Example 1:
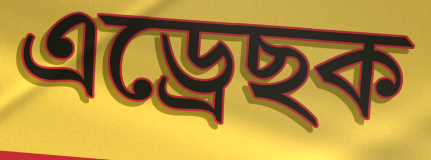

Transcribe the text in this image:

এড্ৰেছক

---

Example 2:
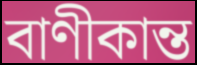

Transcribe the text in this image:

বাণীকান্ত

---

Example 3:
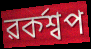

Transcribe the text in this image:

ৱৰ্কশ্বপ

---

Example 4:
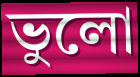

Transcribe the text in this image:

ভুলো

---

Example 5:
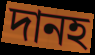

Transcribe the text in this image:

দানহ